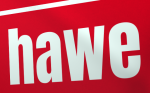
hawe